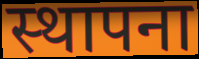
स्थापना